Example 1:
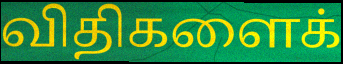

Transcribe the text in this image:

விதிகளைக்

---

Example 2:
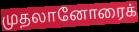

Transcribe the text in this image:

முதலானோரைக்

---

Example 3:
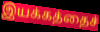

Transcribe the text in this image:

இயக்கத்தைச்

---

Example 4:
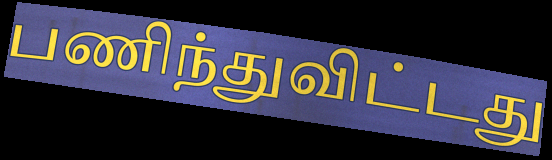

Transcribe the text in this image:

பணிந்துவிட்டது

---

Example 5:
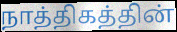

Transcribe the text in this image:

நாத்திகத்தின்